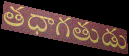
తధాగతుడు